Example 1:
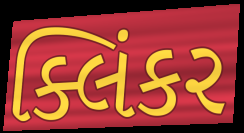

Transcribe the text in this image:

ક્લિંકર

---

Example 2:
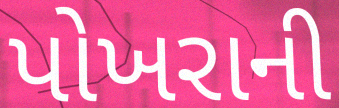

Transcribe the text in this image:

પોખરાની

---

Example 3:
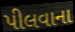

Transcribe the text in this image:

પીલવાના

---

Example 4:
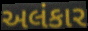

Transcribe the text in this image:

અલંકાર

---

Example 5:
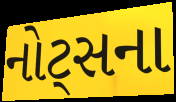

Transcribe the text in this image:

નોટ્સના